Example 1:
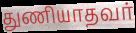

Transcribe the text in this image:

துணியாதவர்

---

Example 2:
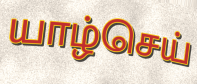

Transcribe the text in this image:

யாழ்செய்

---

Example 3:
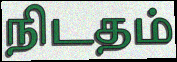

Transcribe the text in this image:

நிடதம்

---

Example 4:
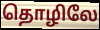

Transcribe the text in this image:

தொழிலே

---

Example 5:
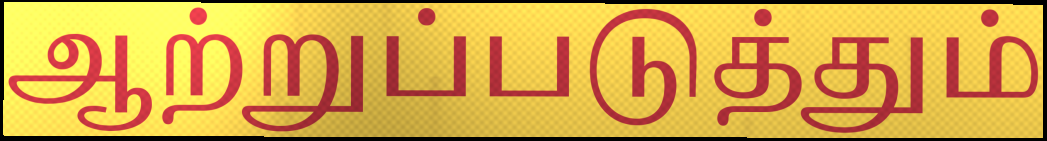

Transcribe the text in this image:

ஆற்றுப்படுத்தும்